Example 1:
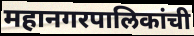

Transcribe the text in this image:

महानगरपालिकांची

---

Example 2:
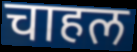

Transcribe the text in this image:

चाहल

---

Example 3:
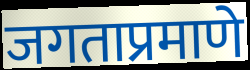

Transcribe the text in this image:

जगताप्रमाणे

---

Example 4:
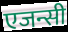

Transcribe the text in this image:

एजन्सी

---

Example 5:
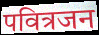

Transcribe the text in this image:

पवित्रजन